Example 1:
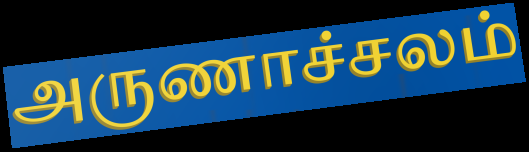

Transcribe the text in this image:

அருணாச்சலம்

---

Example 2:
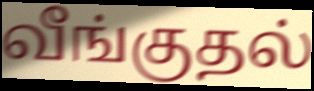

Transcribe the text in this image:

வீங்குதல்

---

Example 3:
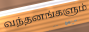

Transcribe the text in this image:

வந்தனங்களும்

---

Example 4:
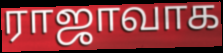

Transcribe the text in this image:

ராஜாவாக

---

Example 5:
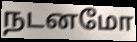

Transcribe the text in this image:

நடனமோ